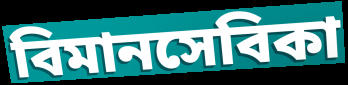
বিমানসেবিকা